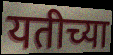
यतीच्या